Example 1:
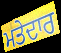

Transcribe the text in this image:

ਮਤੇਦਾਰ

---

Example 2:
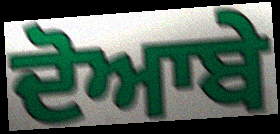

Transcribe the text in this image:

ਦੋਆਬੇ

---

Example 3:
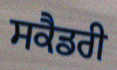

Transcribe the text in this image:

ਸਕੈਡਰੀ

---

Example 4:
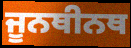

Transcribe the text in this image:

ਜੂਨਥੀਨਥ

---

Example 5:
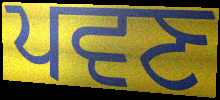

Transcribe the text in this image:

ਪਵਣ